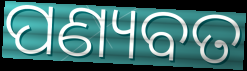
ପଣ୍ୟବତ